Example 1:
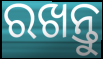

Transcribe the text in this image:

ରଖନ୍ତୁ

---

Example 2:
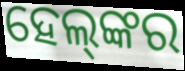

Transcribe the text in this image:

ହେଲ୍‌ଙ୍କର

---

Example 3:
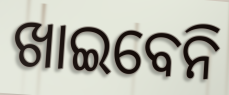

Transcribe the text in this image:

ଖାଇବେନି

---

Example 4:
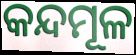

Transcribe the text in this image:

କନ୍ଦମୂଳ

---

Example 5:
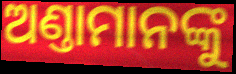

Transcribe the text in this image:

ଅଣ୍ତାମାନଙ୍କୁ